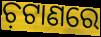
ଚ଼ଟାଣରେ